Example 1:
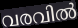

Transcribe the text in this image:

വരവിൽ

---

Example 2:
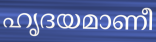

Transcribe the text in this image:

ഹൃദയമാണീ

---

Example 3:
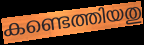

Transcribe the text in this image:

കണ്ടെത്തിയതു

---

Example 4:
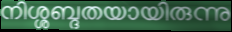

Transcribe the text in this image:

നിശ്ശബ്ദതയായിരുന്നു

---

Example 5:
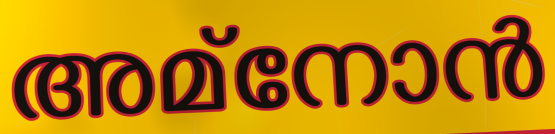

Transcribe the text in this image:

അമ്നോൻ